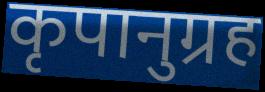
कृपानुग्रह